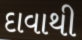
દાવાથી